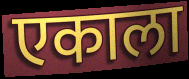
एकाला